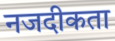
नजदीकता